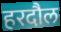
हरदौल